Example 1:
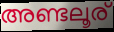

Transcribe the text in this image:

അണ്ടലൂര്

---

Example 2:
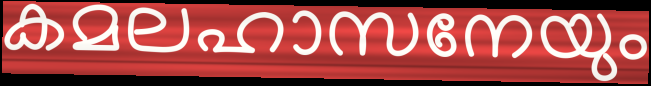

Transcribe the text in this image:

കമലഹാസനേയും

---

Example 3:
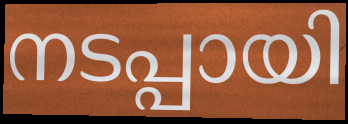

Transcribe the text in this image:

നടപ്പായി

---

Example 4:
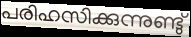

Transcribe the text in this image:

പരിഹസിക്കുന്നുണ്ടു്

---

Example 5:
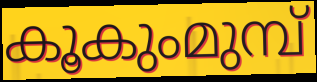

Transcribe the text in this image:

കൂകുംമുമ്പ്